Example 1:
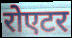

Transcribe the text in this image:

रोएटर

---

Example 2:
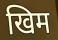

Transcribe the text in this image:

खिम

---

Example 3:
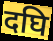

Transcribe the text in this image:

दघि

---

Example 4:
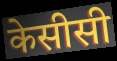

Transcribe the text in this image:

केसीसी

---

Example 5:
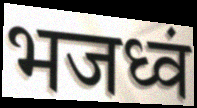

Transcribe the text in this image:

भजध्वं